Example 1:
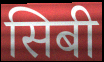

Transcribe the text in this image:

सिबी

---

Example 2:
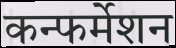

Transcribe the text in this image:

कन्‍फर्मेशन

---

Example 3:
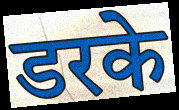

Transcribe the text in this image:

डरके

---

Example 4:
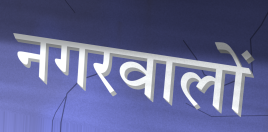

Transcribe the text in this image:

नगरवालों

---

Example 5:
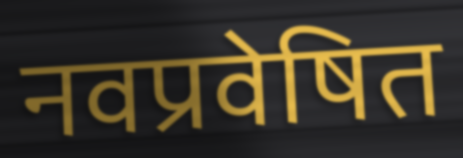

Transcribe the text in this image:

नवप्रवेषित